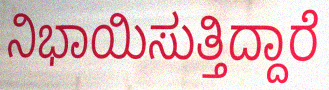
ನಿಭಾಯಿಸುತ್ತಿದ್ದಾರೆ